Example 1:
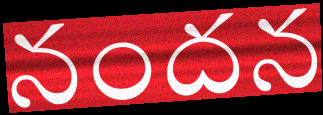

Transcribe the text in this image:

నందన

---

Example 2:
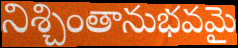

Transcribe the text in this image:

నిశ్చింతానుభవమై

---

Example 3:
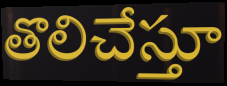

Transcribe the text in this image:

తొలిచేస్తూ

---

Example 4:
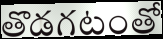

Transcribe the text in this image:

తొడగటంతో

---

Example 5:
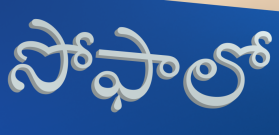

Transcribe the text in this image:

సోఫాలో